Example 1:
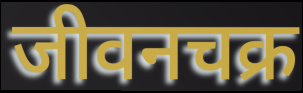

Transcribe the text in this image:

जीवनचक्र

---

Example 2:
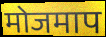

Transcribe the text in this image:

मोजमाप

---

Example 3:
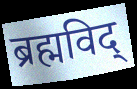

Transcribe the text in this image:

ब्रह्मविद्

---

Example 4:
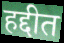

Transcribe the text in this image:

हद्दीत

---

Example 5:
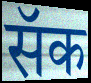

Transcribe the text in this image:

सॅक